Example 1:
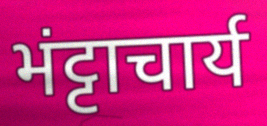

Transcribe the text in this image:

भंट्टाचार्य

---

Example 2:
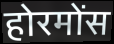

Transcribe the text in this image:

होरमोंस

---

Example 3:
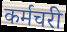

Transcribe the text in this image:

कर्मचरी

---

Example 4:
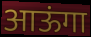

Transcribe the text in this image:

आऊंगा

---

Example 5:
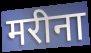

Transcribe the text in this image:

मरीना